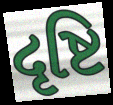
દૃષ્ટિ